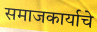
समाजकार्याचे